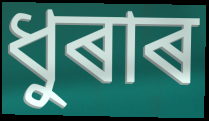
ধুৰাৰ